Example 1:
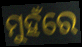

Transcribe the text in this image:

ମୁହଁରେ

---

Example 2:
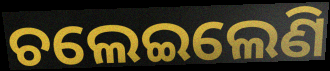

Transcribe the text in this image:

ଚଲେଇଲେଣି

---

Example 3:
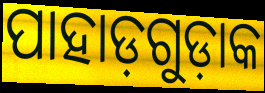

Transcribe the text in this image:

ପାହାଡ଼ଗୁଡ଼ାକ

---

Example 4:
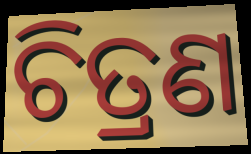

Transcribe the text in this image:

ଚିତ୍ରଣ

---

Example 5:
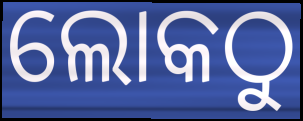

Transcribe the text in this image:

ଲୋକଠୁ